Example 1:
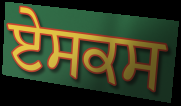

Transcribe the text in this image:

ਏਸਕਸ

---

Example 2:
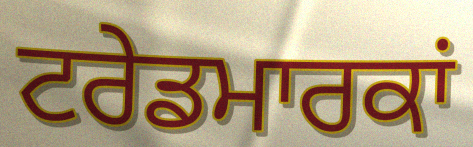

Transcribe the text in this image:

ਟਰੇਡਮਾਰਕਾਂ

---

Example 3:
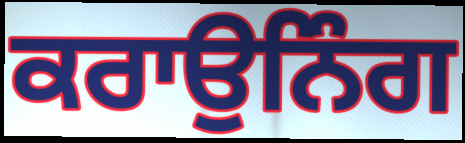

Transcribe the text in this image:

ਕਰਾਉਨਿੰਗ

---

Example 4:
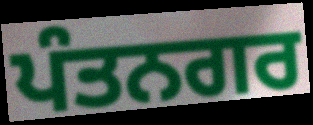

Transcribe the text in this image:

ਪੰਤਨਗਰ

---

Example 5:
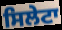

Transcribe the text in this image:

ਸਿਲੇਟਾ